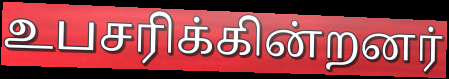
உபசரிக்கின்றனர்